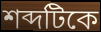
শব্দটিকে